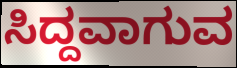
ಸಿದ್ದವಾಗುವ